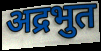
अद्रभुत